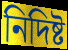
নিদিষ্ট